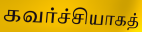
கவர்ச்சியாகத்